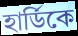
হার্ডিকে